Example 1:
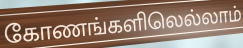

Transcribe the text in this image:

கோணங்களிலெல்லாம்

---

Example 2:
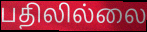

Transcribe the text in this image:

பதிலில்லை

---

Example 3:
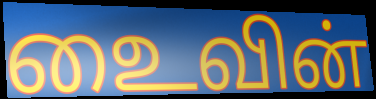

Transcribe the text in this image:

உைவின்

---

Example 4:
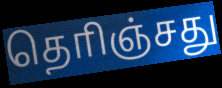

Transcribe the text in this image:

தெரிஞ்சது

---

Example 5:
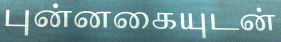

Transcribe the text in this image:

புன்னகையுடன்